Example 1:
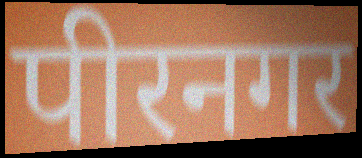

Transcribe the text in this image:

पीरनगर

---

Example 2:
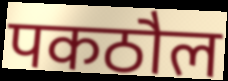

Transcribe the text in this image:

पकठौल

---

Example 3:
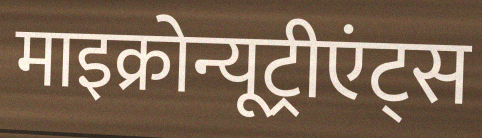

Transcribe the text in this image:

माइक्रोन्यूट्रीएंट्स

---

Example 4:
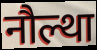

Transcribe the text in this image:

नौल्था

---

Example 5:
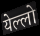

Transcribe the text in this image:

येल्लो